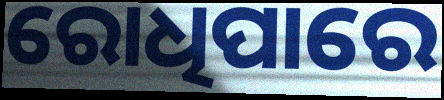
ରୋଧିପାରେ